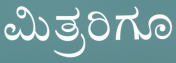
ಮಿತ್ರರಿಗೂ